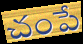
చంపే